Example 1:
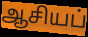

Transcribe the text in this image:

ஆசியப்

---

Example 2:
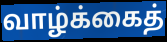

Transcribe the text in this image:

வாழ்க்கைத்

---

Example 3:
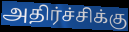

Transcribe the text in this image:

அதிர்ச்சிக்கு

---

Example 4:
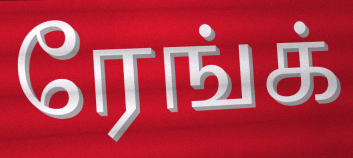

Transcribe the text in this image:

ரேங்க்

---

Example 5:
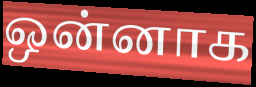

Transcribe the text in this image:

ஒன்னாக